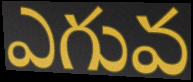
ఎగువ